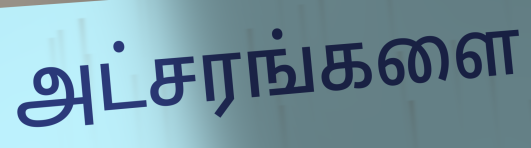
அட்சரங்களை